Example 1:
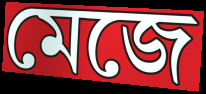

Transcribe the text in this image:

মেজে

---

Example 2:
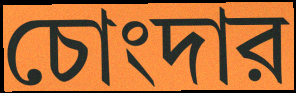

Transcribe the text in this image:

চোংদার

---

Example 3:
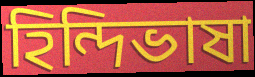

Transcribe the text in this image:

হিন্দিভাষা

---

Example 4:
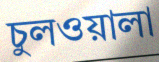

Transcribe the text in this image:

চুলওয়ালা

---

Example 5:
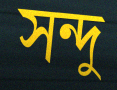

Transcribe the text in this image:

সন্দু